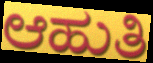
ಆಹುತಿ